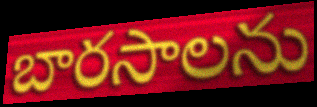
బారసాలను